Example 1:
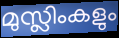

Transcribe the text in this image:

മുസ്ലിംകളും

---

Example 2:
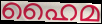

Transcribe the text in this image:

ഹൈമ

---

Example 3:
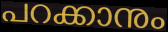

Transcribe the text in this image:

പറക്കാനും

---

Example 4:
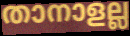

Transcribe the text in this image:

താനാളല്ല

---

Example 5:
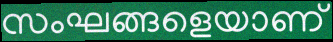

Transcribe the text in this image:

സംഘങ്ങളെയാണ്